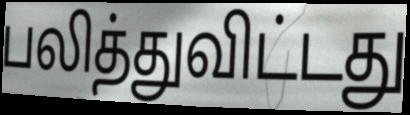
பலித்துவிட்டது